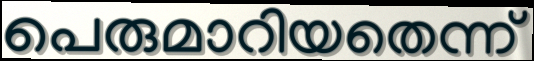
പെരുമാറിയതെന്ന്